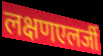
लक्षणएलर्जी